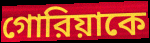
গোরিয়াকে